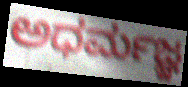
ಅಧರ್ಮಜ್ಞ